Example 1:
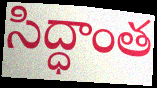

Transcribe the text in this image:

సిద్ధాంత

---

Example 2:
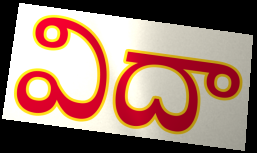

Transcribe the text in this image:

విదా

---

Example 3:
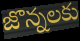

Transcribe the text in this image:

జొన్నలకు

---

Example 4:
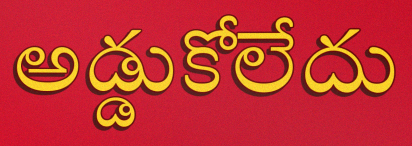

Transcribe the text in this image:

అడ్డుకోలేదు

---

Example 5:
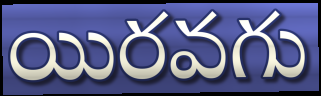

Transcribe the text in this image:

యిరవగు